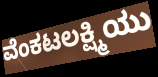
ವೆಂಕಟಲಕ್ಷ್ಮಿಯು